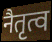
नैतृत्व